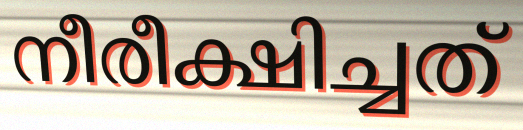
നീരീക്ഷിച്ചത്